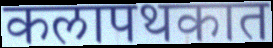
कलापथकात